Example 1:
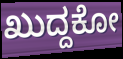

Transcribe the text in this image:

ಖುದ್ದಕೋ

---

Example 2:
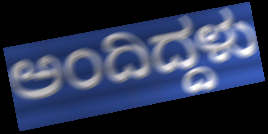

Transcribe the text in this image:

ಅಂದಿದ್ದಳು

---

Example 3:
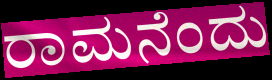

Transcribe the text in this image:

ರಾಮನೆಂದು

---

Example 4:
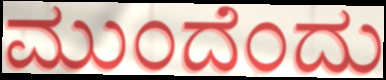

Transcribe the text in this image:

ಮುಂದೆಂದು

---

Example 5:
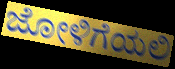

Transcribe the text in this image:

ಜೋಳಿಗೆಯಲಿ